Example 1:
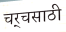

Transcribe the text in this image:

चर्चसाठी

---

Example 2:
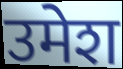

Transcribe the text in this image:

उमेश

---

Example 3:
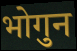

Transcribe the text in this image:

भोगुन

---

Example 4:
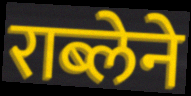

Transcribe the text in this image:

राब्लेने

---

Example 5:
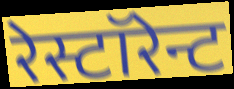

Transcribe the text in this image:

रेस्टॉरेन्ट